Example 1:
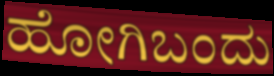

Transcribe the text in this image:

ಹೋಗಿಬಂದು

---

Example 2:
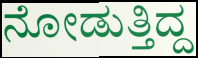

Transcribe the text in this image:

ನೋಡುತ್ತಿದ್ದ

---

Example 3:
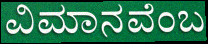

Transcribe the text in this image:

ವಿಮಾನವೆಂಬ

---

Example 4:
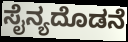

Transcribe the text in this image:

ಸೈನ್ಯದೊಡನೆ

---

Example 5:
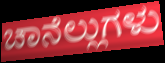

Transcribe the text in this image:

ಚಾನೆಲ್ಲುಗಳು